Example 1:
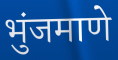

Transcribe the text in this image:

भुंजमाणे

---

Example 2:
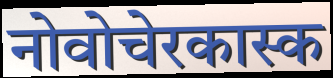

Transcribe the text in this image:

नोवोचेरकास्क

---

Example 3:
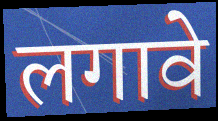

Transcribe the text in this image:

लगावे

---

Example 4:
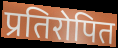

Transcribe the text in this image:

प्रतिरोपित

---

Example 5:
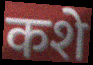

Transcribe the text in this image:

कशे